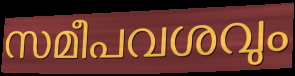
സമീപവശവും